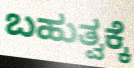
ಬಹುತ್ವಕ್ಕೆ